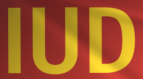
IUD